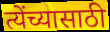
त्येंच्यासाठी